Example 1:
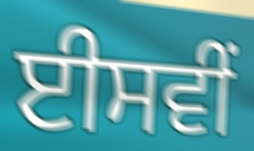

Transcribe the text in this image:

ਈਸਵੀਂ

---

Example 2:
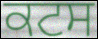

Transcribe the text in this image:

ਕਟਸ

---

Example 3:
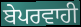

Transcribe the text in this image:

ਬੇਪਰਵਾਹੀ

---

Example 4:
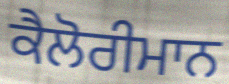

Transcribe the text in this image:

ਕੈਲੋਰੀਮਾਨ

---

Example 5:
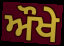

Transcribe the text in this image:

ਔਖੇ